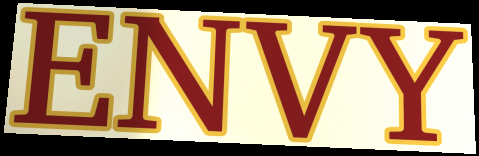
ENVY